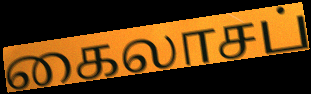
கைலாசப்